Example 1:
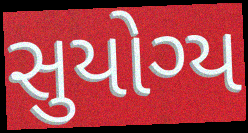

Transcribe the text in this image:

સુયોગ્ય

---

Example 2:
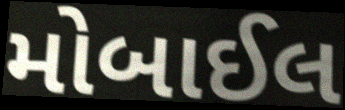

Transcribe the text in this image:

મોબાઈલ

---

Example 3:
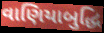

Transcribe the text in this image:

વાણિયાબુદ્ધિ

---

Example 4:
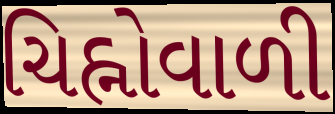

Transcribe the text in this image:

ચિહ્નોવાળી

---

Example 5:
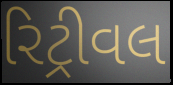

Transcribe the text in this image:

રિટ્રીવલ